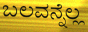
ಬಲವನ್ನೆಲ್ಲ